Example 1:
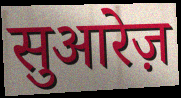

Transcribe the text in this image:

सुआरेज़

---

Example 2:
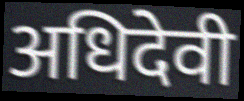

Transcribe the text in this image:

अधिदेवी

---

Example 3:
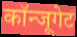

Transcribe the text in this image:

कॉन्जूगेट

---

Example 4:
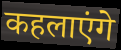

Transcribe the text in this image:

कहलाएंगे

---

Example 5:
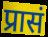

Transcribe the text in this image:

प्रासं